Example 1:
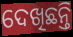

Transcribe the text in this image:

ଦେଖିଛନ୍ତି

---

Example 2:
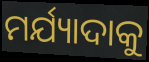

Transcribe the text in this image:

ମର୍ଯ୍ୟାଦାକୁ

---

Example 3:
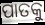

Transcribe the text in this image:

ପାତକୁ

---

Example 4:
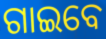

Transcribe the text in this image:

ଗାଇବେ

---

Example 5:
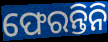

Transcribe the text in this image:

ଫେରନ୍ତିନି